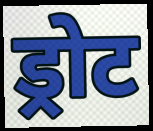
ड्रोट